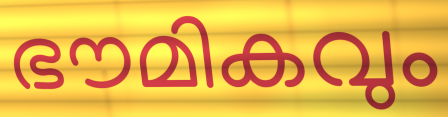
ഭൗമികവും